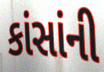
કાંસાંની